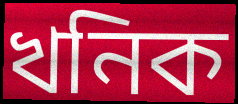
খনিক